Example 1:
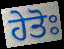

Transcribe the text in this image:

ਹੇਤੋਃ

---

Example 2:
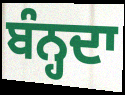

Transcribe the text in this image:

ਬੰਨ੍ਹਦਾ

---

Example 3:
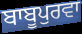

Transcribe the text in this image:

ਬਾਬੂਪੁਰਵਾ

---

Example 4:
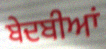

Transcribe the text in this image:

ਬੇਦਬੀਆਂ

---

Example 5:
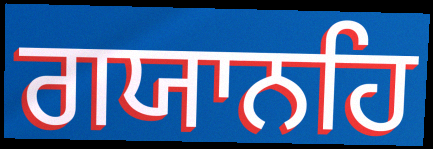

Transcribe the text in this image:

ਗਯਾਨਹਿ